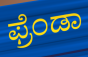
ಫ್ರೆಂಡಾ